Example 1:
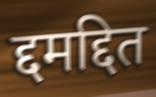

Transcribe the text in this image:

द्दमद्दित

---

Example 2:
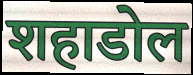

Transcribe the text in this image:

शहाडोल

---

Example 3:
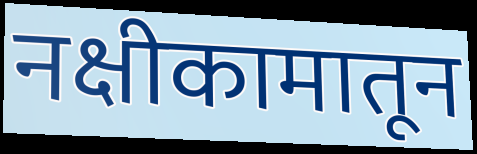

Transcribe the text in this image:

नक्षीकामातून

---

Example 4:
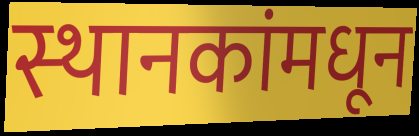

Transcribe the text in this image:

स्थानकांमधून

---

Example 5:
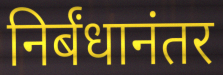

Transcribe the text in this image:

निर्बंधानंतर